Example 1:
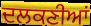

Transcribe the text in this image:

ਦਲਕਣੀਆਂ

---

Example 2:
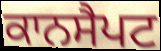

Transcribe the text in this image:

ਕਾਨਸੈਪਟ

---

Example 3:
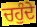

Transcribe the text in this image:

ਚਹੁੰਦੇ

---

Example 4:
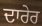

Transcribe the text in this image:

ਦਾਰੇਰ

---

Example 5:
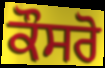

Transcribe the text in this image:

ਕੌਸਰੋ